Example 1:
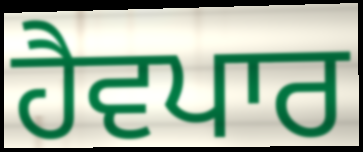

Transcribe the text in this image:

ਹੈਵਪਾਰ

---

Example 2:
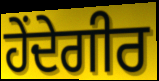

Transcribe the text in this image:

ਹੇਂਦੇਗੀਰ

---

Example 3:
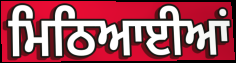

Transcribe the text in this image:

ਮਿਠਿਆਈਆਂ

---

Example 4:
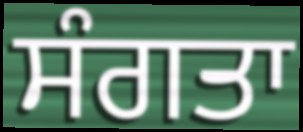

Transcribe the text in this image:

ਸੰਗਤਾ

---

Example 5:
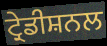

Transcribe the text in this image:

ਟ੍ਰੇਡੀਸ਼ਨਲ